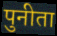
पुनीता